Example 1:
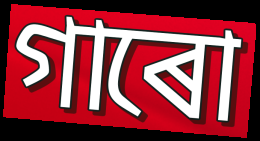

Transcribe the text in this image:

গাৰো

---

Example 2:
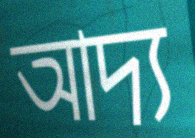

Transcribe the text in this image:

আদ্য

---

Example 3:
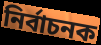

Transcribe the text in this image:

নিৰ্বাচনক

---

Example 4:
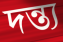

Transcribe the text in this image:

দন্ত্য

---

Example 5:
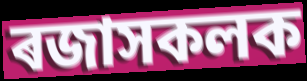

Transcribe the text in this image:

ৰজাসকলক